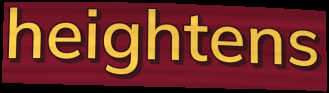
heightens